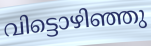
വിട്ടൊഴിഞ്ഞു